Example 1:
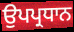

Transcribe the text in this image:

ਉਪਪ੍ਰਧਾਨ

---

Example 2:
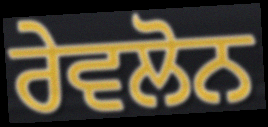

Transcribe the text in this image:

ਰੇਵਲੋਨ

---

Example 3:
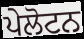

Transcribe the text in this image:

ਪੇਲੋਟਨ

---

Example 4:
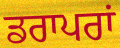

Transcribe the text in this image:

ਡਰਾਪਰਾਂ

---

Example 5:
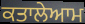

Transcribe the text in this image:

ਕਤਾਲੇਆਮ